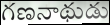
గణనాథుడు